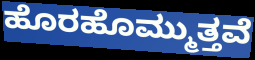
ಹೊರಹೊಮ್ಮುತ್ತವೆ